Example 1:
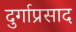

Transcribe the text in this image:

दुर्गाप्रसाद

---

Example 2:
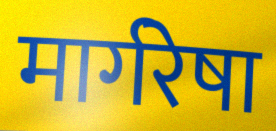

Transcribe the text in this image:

मार्गरेषा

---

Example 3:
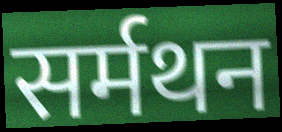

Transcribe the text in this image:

सर्मथन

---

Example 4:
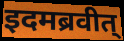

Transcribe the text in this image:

इदमब्रवीत्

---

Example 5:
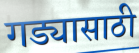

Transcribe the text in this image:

गड्यासाठी